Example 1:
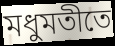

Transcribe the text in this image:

মধুমতীতে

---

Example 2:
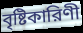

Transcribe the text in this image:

বৃষ্টিকারিণী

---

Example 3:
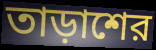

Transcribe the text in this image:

তাড়াশের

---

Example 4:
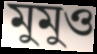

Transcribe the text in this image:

মুমুও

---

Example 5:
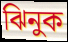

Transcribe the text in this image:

ঝিনুক